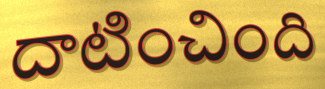
దాటించింది